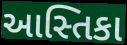
આસ્તિકા